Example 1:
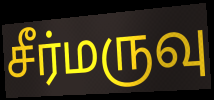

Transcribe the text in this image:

சீர்மருவு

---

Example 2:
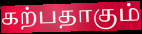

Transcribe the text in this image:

கற்பதாகும்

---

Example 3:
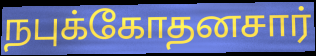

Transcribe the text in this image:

நபுக்கோதனசார்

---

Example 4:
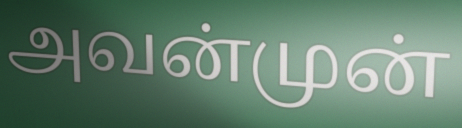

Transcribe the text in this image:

அவன்முன்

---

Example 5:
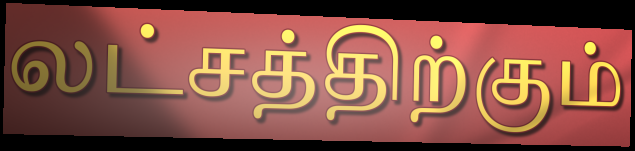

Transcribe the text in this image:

லட்சத்திற்கும்